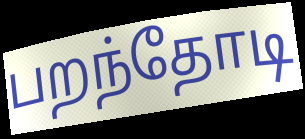
பறந்தோடி